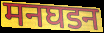
मनघडन